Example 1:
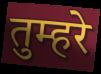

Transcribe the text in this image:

तुम्हरे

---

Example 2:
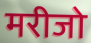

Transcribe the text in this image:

मरीजो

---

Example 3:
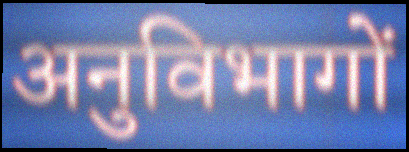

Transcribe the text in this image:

अनुविभागों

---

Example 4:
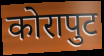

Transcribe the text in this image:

कोरापुट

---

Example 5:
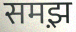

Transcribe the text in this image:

समझ़